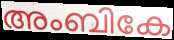
അംബികേ